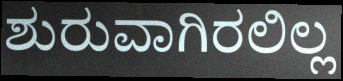
ಶುರುವಾಗಿರಲಿಲ್ಲ